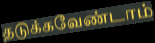
தடுக்கவேண்டாம்